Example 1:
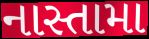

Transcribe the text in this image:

નાસ્તામા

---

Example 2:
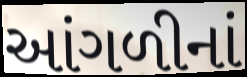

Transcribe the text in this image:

આંગળીનાં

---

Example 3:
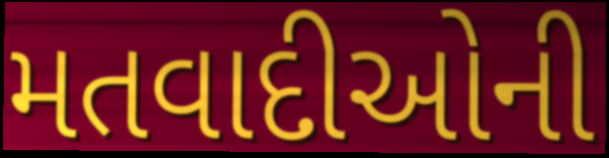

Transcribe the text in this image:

મતવાદીઓની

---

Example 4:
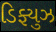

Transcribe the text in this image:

ડિફ્યુઝ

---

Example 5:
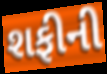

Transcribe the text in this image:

શફીની